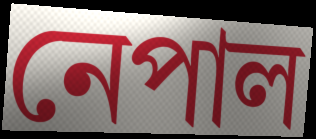
নেপাল